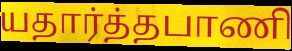
யதார்த்தபாணி